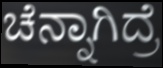
ಚೆನ್ನಾಗಿದ್ರೆ